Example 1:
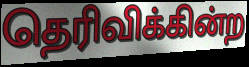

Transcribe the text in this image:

தெரிவிக்கின்ற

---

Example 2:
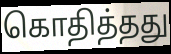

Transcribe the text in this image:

கொதித்தது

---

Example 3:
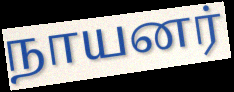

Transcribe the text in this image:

நாயனர்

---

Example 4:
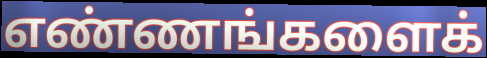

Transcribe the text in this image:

எண்ணங்களைக்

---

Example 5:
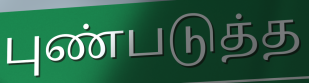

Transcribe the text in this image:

புண்படுத்த